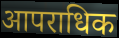
आपराधिक